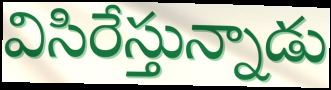
విసిరేస్తున్నాడు